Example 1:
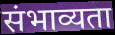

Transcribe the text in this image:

संभाव्यता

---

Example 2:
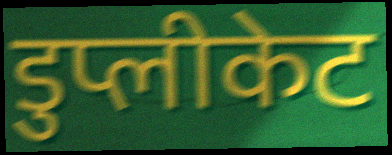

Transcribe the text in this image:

डुप्‍लीकेट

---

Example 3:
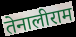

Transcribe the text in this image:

तेनालीराम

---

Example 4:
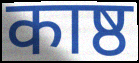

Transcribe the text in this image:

काष्ठ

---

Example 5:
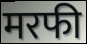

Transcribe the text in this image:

मरफी